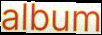
album